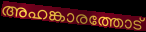
അഹങ്കാരത്തോട്